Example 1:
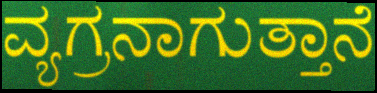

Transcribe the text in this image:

ವ್ಯಗ್ರನಾಗುತ್ತಾನೆ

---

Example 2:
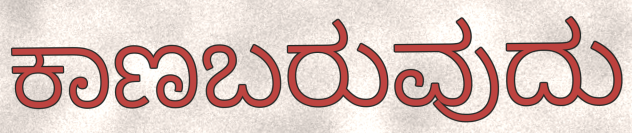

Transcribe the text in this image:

ಕಾಣಬರುವುದು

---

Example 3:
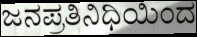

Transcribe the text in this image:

ಜನಪ್ರತಿನಿಧಿಯಿಂದ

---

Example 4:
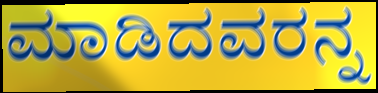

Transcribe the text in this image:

ಮಾಡಿದವರನ್ನ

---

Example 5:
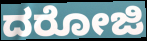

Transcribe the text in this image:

ದರೋಜಿ